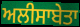
ਅਲੀਸਾਬੇਤਾ